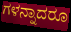
ಗಳನ್ನಾದರೂ